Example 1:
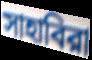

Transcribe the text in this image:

সাহাবিরা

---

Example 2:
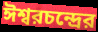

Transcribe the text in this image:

ঈশ্বরচন্দ্রের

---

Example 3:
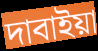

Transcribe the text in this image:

দাবাইয়া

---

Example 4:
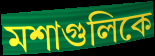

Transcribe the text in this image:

মশাগুলিকে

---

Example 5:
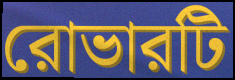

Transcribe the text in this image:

রোভারটি